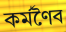
কর্মণৈব